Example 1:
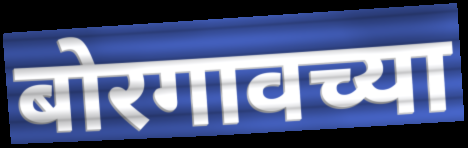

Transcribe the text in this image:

बोरगावच्या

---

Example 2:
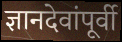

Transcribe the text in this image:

ज्ञानदेवांपूर्वी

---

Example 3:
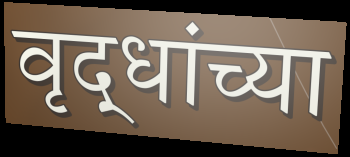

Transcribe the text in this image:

वृद्धांच्या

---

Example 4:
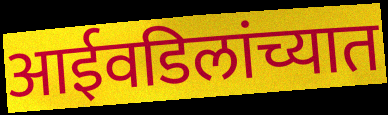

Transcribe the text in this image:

आईवडिलांच्यात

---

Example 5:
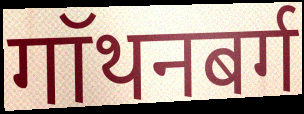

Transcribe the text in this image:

गॉथनबर्ग